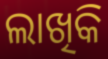
ଲାଖିକି